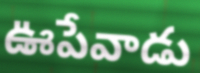
ఊపేవాడు